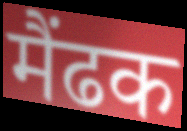
मैंढक